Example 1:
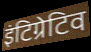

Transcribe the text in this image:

इंटिग्रेटिव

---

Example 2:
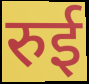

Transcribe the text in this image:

रुई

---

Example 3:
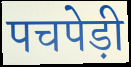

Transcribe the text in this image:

पचपेड़ी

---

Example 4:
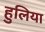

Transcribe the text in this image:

हुलिया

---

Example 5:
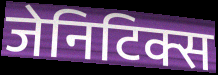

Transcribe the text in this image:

जेनिटिक्स